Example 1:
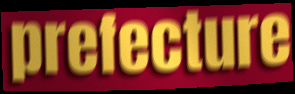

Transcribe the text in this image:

prefecture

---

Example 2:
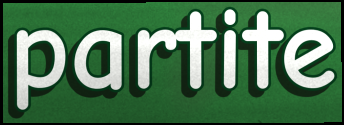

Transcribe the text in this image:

partite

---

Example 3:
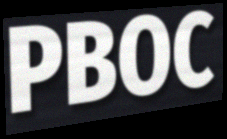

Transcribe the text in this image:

PBOC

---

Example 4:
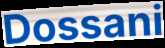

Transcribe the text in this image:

Dossani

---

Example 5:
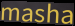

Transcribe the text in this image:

masha